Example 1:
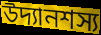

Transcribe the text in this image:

উদ্যানশস্য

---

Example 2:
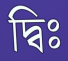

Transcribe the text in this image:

দ্বিঃ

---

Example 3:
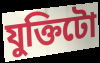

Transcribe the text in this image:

যুক্তিটো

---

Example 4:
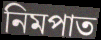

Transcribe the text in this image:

নিমপাত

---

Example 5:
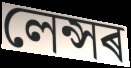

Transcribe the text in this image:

লেন্সৰ